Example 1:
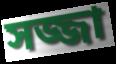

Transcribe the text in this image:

সজ্জা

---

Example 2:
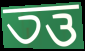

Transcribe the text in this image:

তত্ত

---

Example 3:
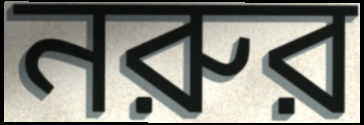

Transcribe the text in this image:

নরুর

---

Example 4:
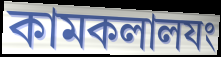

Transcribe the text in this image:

কামকলালযং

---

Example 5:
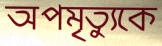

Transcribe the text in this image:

অপমৃত্যুকে